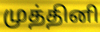
முத்தினி